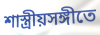
শাস্ত্রীয়সঙ্গীতে